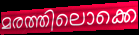
മരത്തിലൊക്കെ